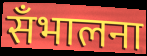
सँभालना